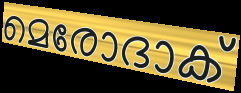
മെരോദാക്